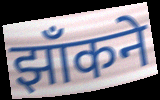
झाँकने